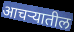
आचऱ्यातील